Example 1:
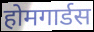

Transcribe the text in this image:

होमगार्डस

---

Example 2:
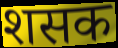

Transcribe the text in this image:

शसक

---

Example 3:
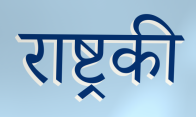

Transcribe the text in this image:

राष्ट्रकी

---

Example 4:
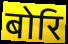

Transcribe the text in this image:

बोरि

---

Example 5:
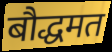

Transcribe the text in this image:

बौद्धमत